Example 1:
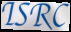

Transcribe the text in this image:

ISRC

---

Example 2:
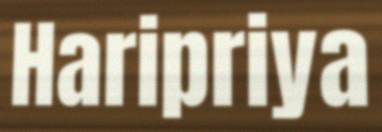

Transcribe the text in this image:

Haripriya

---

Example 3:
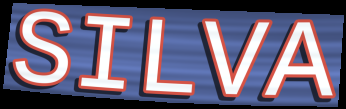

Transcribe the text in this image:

SILVA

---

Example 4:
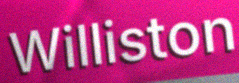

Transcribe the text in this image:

Williston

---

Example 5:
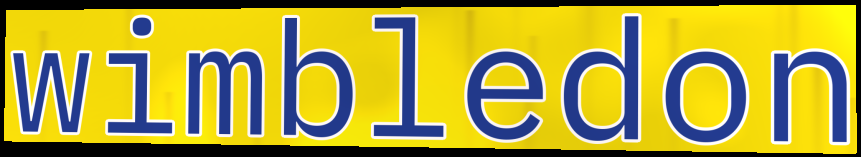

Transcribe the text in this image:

wimbledon